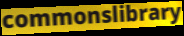
commonslibrary